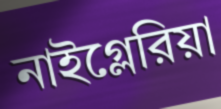
নাইগ্লেরিয়া